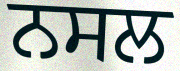
ਨਸਲ